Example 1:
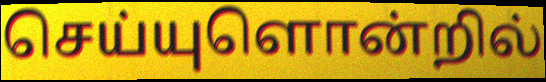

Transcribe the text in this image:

செய்யுளொன்றில்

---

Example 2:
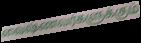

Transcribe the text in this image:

வைஷ்ணவர்களுக்கும்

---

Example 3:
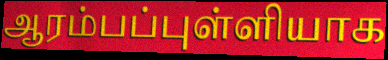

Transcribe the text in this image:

ஆரம்பப்புள்ளியாக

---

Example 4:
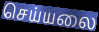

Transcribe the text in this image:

செய்யலை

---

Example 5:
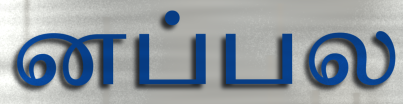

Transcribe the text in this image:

னப்பல